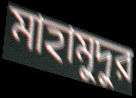
মাহামুদুর